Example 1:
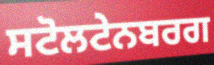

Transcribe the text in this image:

ਸਟੋਲਟੇਨਬਰਗ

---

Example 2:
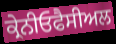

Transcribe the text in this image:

ਕ੍ਰੇਨੀਓਫੈਸੀਅਲ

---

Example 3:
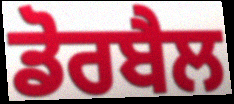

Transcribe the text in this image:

ਡੋਰਬੈਲ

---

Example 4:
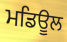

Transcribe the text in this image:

ਮਡਿਊਲ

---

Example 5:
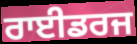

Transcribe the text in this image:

ਰਾਈਡਰਜ